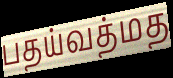
பதய்வத்மத